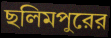
ছলিমপুরের